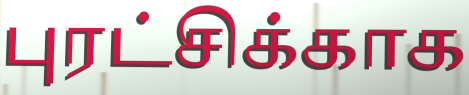
புரட்சிக்காக